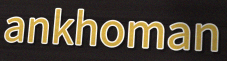
ankhoman